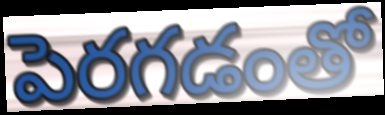
పెరగడంతో